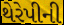
થેરેપીની